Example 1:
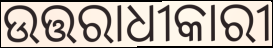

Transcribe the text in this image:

ଉତ୍ତରାଧୀକାରୀ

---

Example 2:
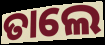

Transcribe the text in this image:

ତାଲେ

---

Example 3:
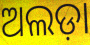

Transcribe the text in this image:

ଅଲଡ଼ା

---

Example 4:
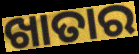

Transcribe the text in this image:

ଖାତାର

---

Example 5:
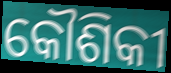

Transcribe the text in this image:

କୌଶିକୀ